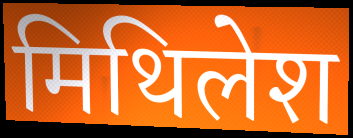
मिथिलेश